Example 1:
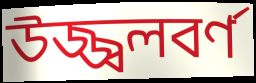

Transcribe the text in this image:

উজ্জ্বলবর্ণ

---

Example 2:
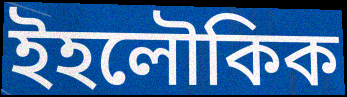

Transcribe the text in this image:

ইহলৌকিক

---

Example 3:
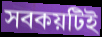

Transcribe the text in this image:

সবকয়টিই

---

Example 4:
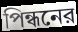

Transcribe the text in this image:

পিন্ধনের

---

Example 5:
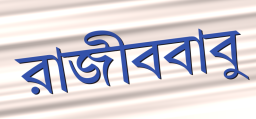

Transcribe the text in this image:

রাজীববাবু